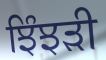
ਝਿੰਝੜੀ